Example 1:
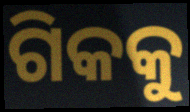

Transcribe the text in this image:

ଗିକକୁ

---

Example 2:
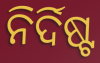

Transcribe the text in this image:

ନିର୍ଦିଷ୍ଟ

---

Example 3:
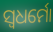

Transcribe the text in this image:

ସ୍ୱଧର୍ମୋ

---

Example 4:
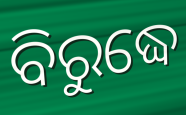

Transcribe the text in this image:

ବିରୁଦ୍ଧେ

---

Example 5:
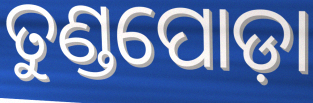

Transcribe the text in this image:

ତୁଣ୍ଡପୋଡ଼ା